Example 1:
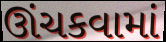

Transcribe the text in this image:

ઊંચકવામાં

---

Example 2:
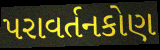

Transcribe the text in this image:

પરાવર્તનકોણ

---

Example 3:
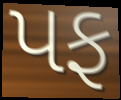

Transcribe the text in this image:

પફ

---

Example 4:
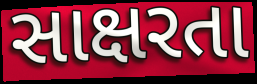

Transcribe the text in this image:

સાક્ષરતા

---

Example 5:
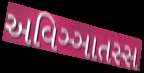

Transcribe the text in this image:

અવિઞ્ઞાતસ્સ